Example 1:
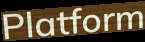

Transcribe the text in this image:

Platform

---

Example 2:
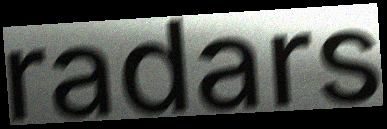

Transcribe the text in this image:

radars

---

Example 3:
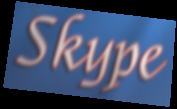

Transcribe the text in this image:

Skype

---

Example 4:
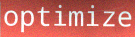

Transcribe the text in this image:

optimize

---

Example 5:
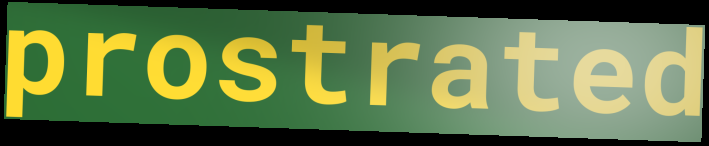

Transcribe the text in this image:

prostrated